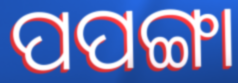
ପପଙ୍ଗା